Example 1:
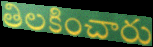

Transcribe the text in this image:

తిలకించారు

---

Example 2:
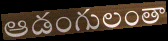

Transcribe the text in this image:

ఆడంగులంతా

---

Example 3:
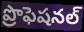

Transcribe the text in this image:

ప్రొఫెషనల్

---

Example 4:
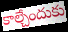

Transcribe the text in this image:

కాల్చేందుకు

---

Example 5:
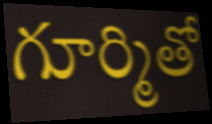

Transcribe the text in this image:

గూర్మితో